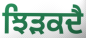
ਝਿੜਕਦੈ